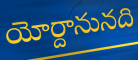
యోర్దానునది